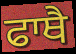
ਫਾਥੈ